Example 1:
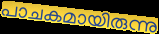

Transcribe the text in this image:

പാചകമായിരുന്നു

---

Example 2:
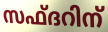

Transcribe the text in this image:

സഫ്ദറിന്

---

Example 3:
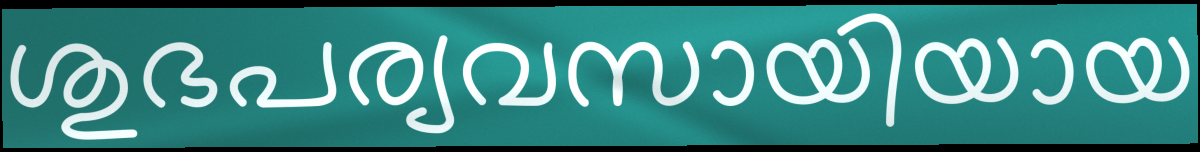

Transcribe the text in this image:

ശുഭപര്യവസായിയായ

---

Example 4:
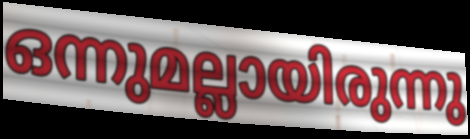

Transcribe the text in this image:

ഒന്നുമല്ലായിരുന്നു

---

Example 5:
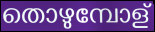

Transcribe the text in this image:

തൊഴുമ്പോള്